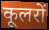
कूलरों